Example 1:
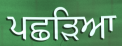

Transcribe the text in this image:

ਪਛੜਿਆ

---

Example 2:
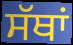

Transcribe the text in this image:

ਸੱਥਾਂ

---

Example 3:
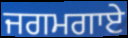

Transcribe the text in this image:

ਜਗਮਗਾਏ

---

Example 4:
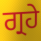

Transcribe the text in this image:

ਗ੍ਰਹੇ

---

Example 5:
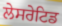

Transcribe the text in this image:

ਲੇਸਰੇਟਿਡ